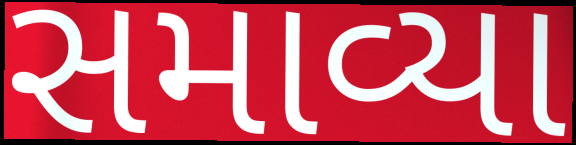
સમાવ્યા